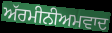
ਅੱਰਮੀਨੀਅਮਵਾਦ